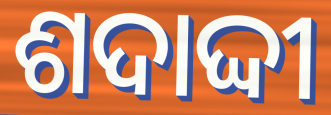
ଶଦାଦ୍ଦୀ